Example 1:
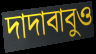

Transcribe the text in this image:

দাদাবাবুও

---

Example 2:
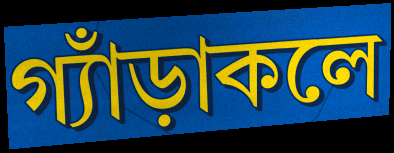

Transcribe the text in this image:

গ্যাঁড়াকলে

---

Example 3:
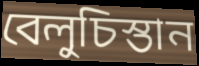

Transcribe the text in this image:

বেলুচিস্তান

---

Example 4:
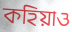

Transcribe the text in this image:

কহিয়াও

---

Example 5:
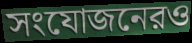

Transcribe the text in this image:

সংযোজনেরও